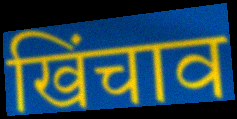
खिंचाव